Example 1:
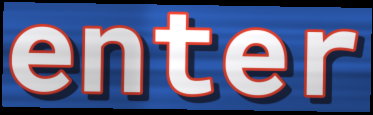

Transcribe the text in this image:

enter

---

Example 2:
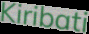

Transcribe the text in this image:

Kiribati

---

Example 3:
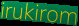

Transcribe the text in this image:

irukirom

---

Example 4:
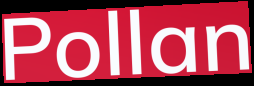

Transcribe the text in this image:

Pollan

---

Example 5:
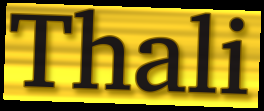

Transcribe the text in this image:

Thali